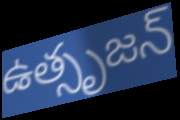
ఉత్సృజన్